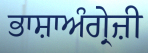
ਭਾਸ਼ਾਅੰਗ੍ਰੇਜ਼ੀ